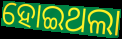
ହୋଇଥଲା